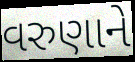
વરુણાને